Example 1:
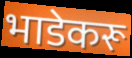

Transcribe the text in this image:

भाडेकरू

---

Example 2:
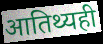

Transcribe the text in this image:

आतिथ्यही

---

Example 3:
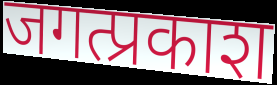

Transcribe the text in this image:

जगत्प्रकाश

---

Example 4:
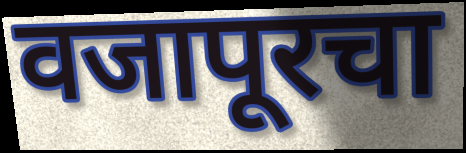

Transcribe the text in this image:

वजापूरचा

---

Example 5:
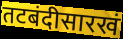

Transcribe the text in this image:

तटबंदीसारखं